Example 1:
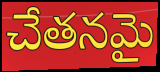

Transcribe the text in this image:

చేతనమై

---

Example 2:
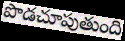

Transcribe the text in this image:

పొడచూపుతుంది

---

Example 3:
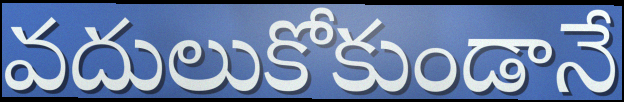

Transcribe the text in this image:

వదులుకోకుండానే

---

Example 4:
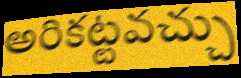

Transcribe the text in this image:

అరికట్టవచ్చు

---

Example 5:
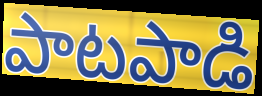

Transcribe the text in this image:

పాటపాడి